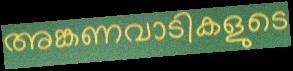
അങ്കണവാടികളുടെ